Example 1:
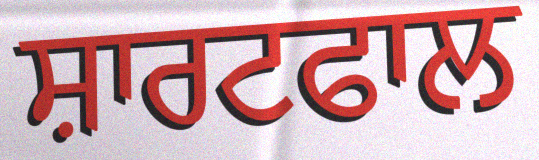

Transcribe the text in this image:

ਸ਼ਾਰਟਫਾਲ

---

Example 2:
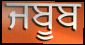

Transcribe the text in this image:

ਜਬੂਬ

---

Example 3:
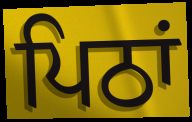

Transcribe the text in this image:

ਪਿਠਾਂ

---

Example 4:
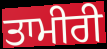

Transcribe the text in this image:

ਤਾਮੀਰੀ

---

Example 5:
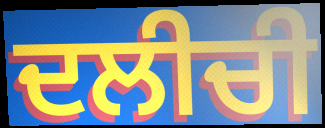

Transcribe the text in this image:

ਦਲੀਚੀ